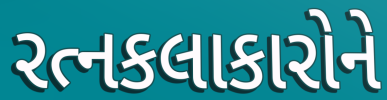
રત્નકલાકારોને